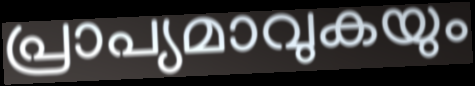
പ്രാപ്യമാവുകയും